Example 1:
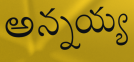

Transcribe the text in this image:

అన్నయ్య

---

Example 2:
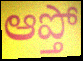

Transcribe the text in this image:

ఆప్తో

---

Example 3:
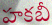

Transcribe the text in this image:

హకబీ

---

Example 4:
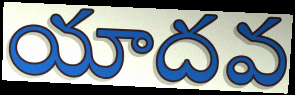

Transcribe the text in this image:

యాదవ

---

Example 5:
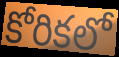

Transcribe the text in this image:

కోరికలో